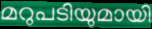
മറുപടിയുമായി